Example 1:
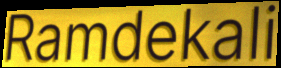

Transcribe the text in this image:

Ramdekali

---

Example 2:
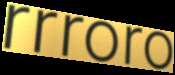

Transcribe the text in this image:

rrroro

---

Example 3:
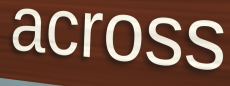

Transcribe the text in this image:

across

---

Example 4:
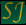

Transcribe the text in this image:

SJ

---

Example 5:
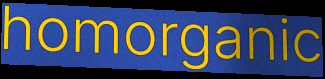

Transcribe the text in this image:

homorganic